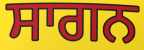
ਸਾਗਨ